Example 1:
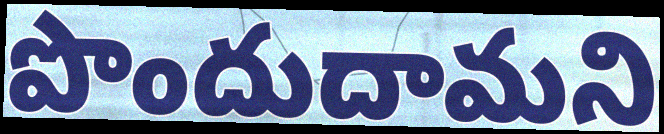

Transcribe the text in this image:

పొందుదామని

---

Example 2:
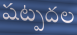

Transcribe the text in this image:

షట్పదల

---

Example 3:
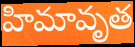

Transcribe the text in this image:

హిమావృత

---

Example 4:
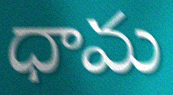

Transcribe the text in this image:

ధామ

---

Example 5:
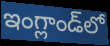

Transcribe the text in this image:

ఇంగ్లాండ్‌లో